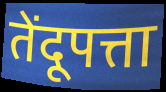
तेंदूपत्ता